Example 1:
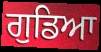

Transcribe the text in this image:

ਗੁਡਿਆ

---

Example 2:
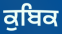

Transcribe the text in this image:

ਕੁਬਿਕ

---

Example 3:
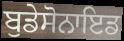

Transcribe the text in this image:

ਬੁਡੇਸੋਨਾਇਡ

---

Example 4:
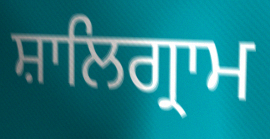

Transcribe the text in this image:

ਸ਼ਾਲਿਗ੍ਰਾਮ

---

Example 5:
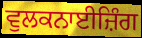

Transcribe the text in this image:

ਵੁਲਕਨਾਈਜ਼ਿੰਗ